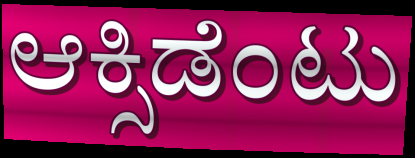
ಆಕ್ಸಿಡೆಂಟು